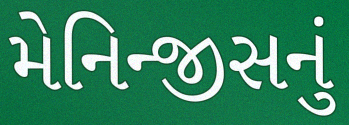
મેનિન્જીસનું